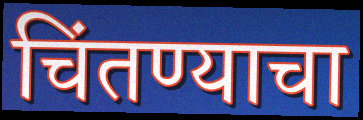
चिंतण्याचा